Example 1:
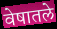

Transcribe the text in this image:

वेषातले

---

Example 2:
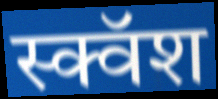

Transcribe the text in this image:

स्क्वॅश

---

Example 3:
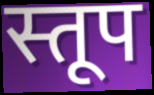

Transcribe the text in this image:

स्तूप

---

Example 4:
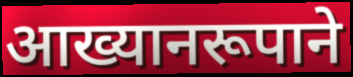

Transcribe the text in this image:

आख्यानरूपाने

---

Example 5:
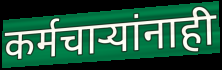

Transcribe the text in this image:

कर्मचार्‍यांनाही